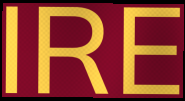
IRE